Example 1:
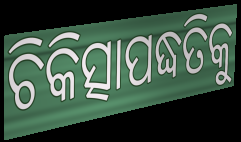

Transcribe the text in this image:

ଚିକିତ୍ସାପଦ୍ଧତିକୁ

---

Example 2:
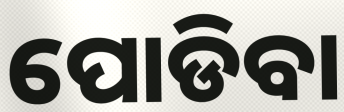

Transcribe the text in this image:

ପୋଡିବା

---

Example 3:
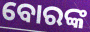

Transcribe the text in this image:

ବୋରଙ୍କ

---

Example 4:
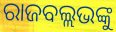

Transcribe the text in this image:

ରାଜବଲ୍ଲଭଙ୍କୁ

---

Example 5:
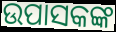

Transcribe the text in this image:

ଉପାସକଙ୍କ